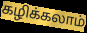
கழிக்கலாம்